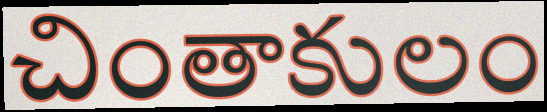
చింతాకులం